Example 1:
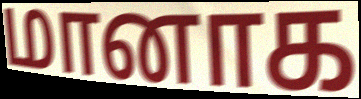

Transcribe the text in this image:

மானாக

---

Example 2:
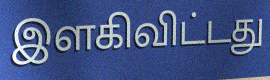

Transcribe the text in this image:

இளகிவிட்டது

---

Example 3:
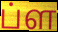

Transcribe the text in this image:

ப்ள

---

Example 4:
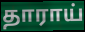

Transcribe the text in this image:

தாராய்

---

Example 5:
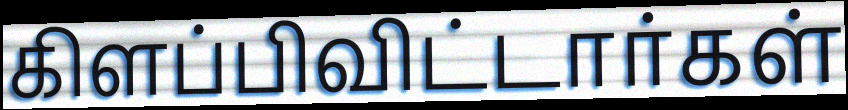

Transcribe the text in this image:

கிளப்பிவிட்டார்கள்